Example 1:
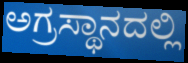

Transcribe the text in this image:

ಅಗ್ರಸ್ಥಾನದಲ್ಲಿ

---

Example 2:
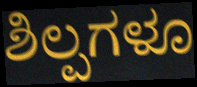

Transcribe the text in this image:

ಶಿಲ್ಪಗಳೂ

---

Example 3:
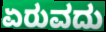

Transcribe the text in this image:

ಏರುವದು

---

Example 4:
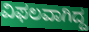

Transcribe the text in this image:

ವಿಫಲವಾಗಿದ್ದ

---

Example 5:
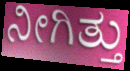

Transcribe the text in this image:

ನೀಗಿತ್ತು